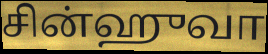
சின்ஹுவா